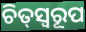
ଚିତ୍‌ସ୍ୱରୂପ